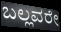
ಬಲ್ಲವರೇ